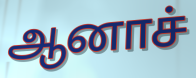
ஆனாச்